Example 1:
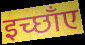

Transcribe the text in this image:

इच्छाँए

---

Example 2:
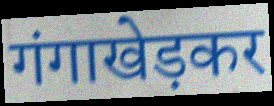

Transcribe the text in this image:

गंगाखेड़कर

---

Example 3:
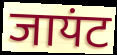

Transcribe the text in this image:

जायंट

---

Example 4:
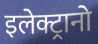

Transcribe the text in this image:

इलेक्ट्रानो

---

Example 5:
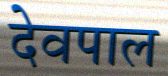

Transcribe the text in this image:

देवपाल